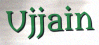
Ujjain